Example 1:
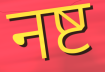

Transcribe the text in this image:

नष्ट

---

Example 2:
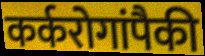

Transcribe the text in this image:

कर्करोगांपैकी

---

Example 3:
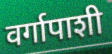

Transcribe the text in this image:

वर्गापाशी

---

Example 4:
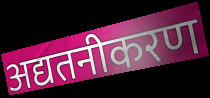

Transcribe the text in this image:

अद्यतनीकरण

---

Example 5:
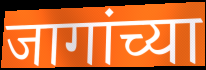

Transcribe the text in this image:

जागांच्या